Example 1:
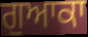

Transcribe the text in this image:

ਗੁਆਕਾ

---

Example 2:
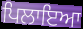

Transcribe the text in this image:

ਪਿਲਾਇਆ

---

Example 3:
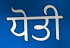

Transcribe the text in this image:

ਧੋਤੀ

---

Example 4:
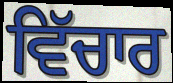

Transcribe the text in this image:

ਵਿੱਚਾਰ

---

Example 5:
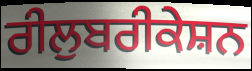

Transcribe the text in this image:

ਰੀਲੁਬਰੀਕੇਸ਼ਨ